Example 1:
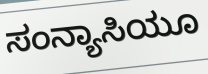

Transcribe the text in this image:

ಸಂನ್ಯಾಸಿಯೂ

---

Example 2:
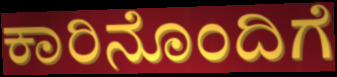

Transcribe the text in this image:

ಕಾರಿನೊಂದಿಗೆ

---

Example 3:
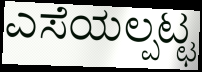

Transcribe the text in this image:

ಎಸೆಯಲ್ಪಟ್ಟ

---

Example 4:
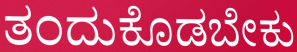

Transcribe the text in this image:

ತಂದುಕೊಡಬೇಕು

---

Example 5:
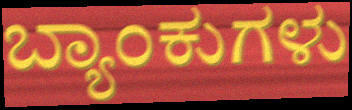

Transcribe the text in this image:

ಬ್ಯಾಂಕುಗಳು